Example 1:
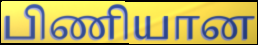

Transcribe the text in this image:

பிணியான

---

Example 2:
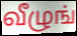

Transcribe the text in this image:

வீழுங்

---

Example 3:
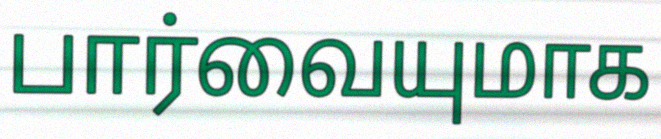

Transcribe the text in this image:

பார்வையுமாக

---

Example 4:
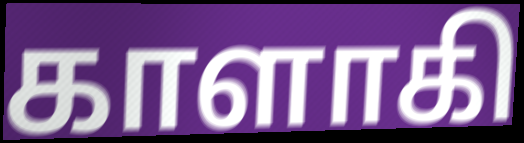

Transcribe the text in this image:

காளாகி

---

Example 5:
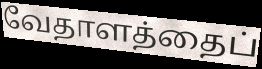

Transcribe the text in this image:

வேதாளத்தைப்